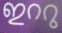
ഇററു